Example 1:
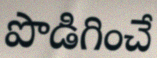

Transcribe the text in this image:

పొడిగించే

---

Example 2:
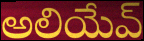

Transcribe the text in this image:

అలియేవ్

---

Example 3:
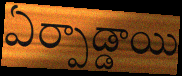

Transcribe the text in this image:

ఏర్పాడ్డాయి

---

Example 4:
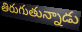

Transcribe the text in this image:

తిరుగుతున్నాడు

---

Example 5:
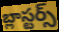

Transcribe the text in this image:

బ్లాస్టర్స్